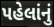
પહેલાંનું